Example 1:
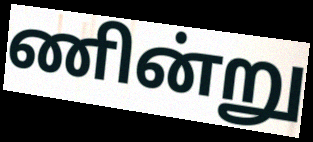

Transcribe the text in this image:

ணின்று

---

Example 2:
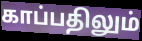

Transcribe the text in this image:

காப்பதிலும்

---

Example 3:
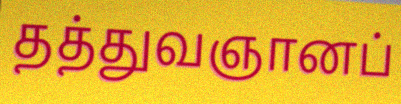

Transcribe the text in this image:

தத்துவஞானப்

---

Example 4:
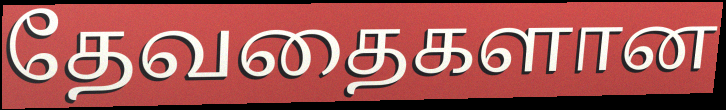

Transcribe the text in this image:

தேவதைகளான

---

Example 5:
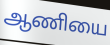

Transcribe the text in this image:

ஆணியை